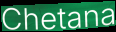
Chetana